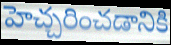
హెచ్చరించడానికి